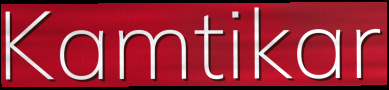
Kamtikar